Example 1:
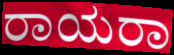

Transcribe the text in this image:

ರಾಯರಾ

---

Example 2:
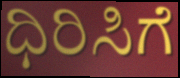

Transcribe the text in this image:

ಧಿರಿಸಿಗೆ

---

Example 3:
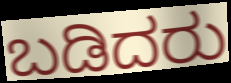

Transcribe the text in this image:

ಬಡಿದರು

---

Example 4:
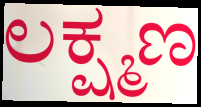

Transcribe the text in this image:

ಲಕ್ಷ್ಮಣ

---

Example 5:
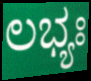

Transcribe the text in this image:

ಲಭ್ಯಃ